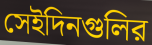
সেইদিনগুলির